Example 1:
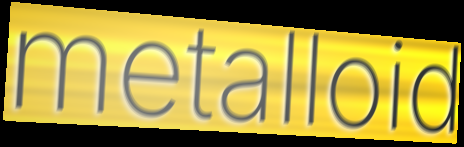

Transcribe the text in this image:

metalloid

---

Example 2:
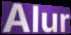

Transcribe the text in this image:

Alur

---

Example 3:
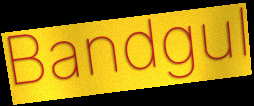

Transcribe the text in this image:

Bandgul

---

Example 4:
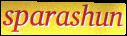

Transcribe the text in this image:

sparashun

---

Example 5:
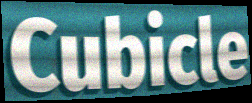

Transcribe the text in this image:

Cubicle